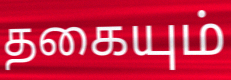
தகையும்